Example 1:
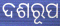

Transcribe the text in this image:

ଦଶରୂପ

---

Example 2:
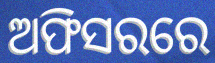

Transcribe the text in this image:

ଅଫିସରରେ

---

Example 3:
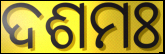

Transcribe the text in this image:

ଦଶମଃ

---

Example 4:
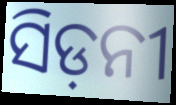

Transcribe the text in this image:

ସିଡ଼ନୀ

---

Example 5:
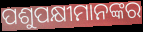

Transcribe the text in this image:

ପଶୁପକ୍ଷୀମାନଙ୍କର